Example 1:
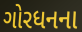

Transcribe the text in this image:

ગોરધનના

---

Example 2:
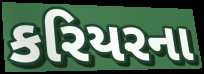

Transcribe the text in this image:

કરિયરના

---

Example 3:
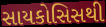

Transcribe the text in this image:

સાયકોસિસથી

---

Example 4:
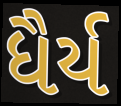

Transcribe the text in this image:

ધૈર્ય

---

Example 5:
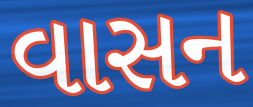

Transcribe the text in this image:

વાસન